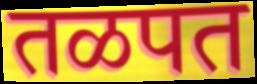
तळपत